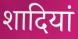
शादियां